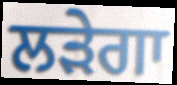
ਲੜੇਗਾ